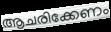
ആചരിക്കേണം